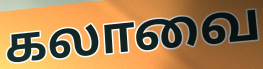
கலாவை